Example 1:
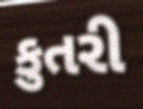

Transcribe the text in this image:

કુતરી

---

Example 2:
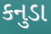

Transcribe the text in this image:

કનુડા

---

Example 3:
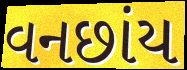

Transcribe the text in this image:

વનછાંય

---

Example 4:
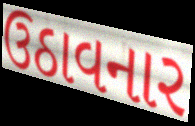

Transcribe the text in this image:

ઉઠાવનાર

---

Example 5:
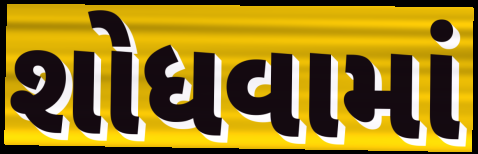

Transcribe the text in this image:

શોધવામાં